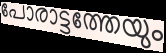
പോരാട്ടത്തേയും